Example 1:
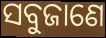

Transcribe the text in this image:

ସବୁଜାଣେ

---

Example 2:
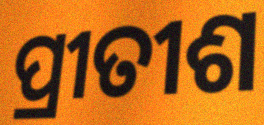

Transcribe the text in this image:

ପ୍ରୀତୀଶ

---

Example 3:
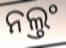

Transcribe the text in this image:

ନଲ୍ତଂ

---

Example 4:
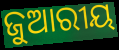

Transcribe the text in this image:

ଜୁଆରୀୟ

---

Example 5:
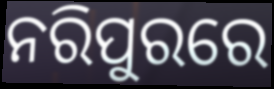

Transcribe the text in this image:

ନରିପୁରରେ